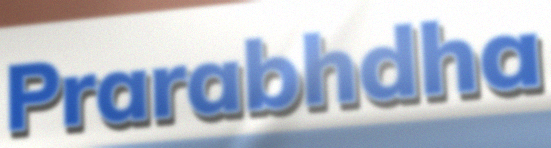
Prarabhdha